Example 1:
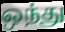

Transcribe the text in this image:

ஒந்து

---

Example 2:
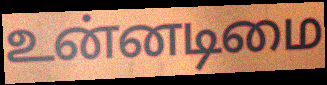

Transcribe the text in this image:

உன்னடிமை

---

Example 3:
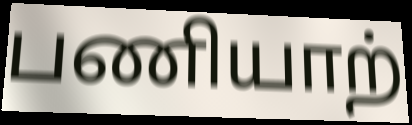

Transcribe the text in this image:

பணியாற்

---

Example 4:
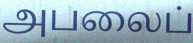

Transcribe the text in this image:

அபலைப்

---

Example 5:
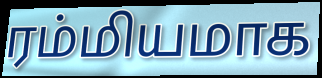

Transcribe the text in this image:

ரம்மியமாக